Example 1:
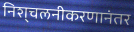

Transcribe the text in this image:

निश्चलनीकरणानंतर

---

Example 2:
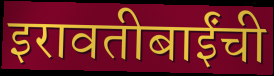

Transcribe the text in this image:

इरावतीबाईंची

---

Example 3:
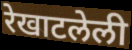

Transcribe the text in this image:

रेखाटलेली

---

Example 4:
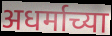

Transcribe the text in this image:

अधर्माच्या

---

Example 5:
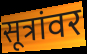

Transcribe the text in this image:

सूत्रांवर